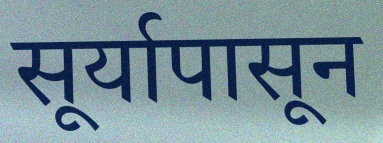
सूर्यापासून